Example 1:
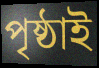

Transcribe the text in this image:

পৃষ্ঠাই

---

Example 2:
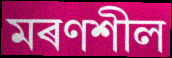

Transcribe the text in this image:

মৰণশীল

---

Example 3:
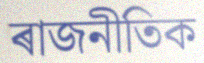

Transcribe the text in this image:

ৰাজনীতিক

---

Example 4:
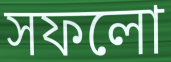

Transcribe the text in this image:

সফলো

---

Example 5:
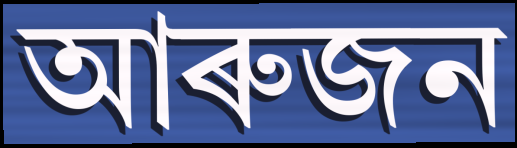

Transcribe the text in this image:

আৰুজন